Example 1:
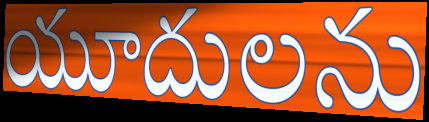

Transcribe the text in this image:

యూదులను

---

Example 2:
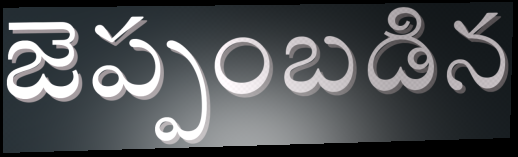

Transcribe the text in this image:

జెప్పంబడిన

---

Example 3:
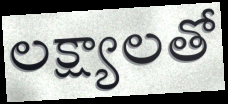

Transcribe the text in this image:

లక్ష్యాలతో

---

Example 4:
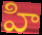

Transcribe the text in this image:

హి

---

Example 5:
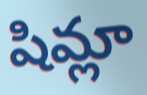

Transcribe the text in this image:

షిమ్లా